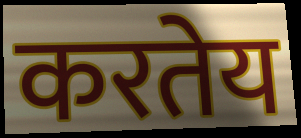
करतेय